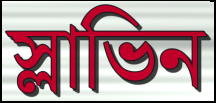
স্লাভিন